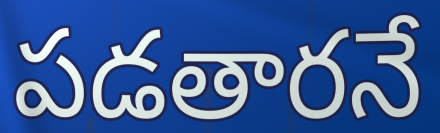
పడతారనే